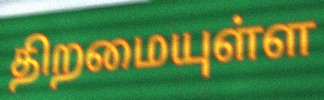
திறமையுள்ள